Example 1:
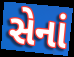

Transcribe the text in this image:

સેનાં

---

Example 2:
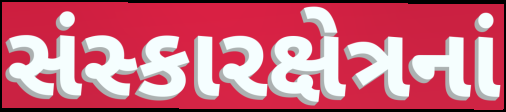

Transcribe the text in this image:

સંસ્કારક્ષેત્રનાં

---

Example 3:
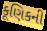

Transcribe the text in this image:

કૂણિકની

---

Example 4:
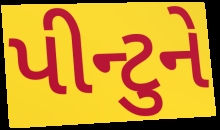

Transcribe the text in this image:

પીન્ટુને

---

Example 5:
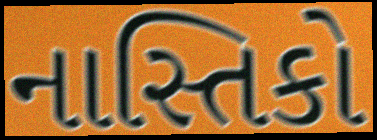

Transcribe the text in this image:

નાસ્તિકો